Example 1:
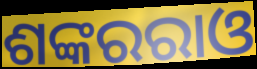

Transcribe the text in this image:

ଶଙ୍କରରାଓ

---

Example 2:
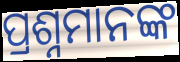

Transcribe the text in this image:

ପ୍ରଶ୍ନମାନଙ୍କ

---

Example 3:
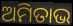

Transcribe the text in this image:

ଅମିତାଭ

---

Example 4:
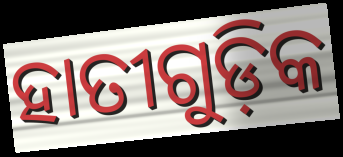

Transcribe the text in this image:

ହାତୀଗୁଡ଼ିକ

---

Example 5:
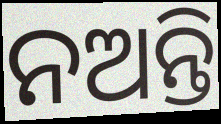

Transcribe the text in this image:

ନଅନ୍ତି